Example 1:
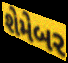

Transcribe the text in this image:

શેમેબર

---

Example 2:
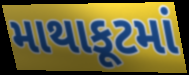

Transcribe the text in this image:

માથાકૂટમાં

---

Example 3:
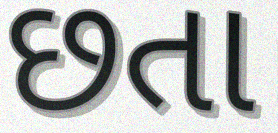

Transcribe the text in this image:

છતા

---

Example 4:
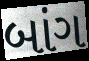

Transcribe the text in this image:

બાંગ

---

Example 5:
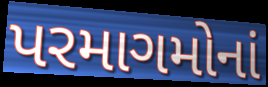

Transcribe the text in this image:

પરમાગમોનાં